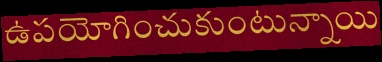
ఉపయోగించుకుంటున్నాయి